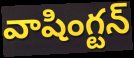
వాషింగ్టన్